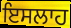
ਇਸਲਾਹ